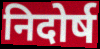
निदोर्ष